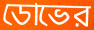
ডোভের